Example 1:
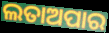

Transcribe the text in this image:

ଲତାଅପାର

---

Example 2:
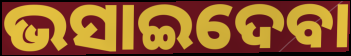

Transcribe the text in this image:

ଭସାଇଦେବା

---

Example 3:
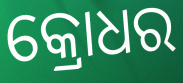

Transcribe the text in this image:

କ୍ରୋଧର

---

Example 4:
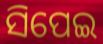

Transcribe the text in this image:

ସିପେଇ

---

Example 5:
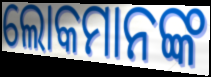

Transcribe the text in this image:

ଲୋକମାନଙ୍କ